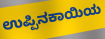
ಉಪ್ಪಿನಕಾಯಿಯ